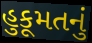
હુકૂમતનું